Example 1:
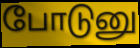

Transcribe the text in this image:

போடுனு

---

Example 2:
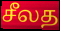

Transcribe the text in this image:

சீலத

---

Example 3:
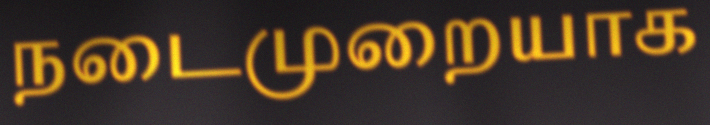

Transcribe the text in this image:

நடைமுறையாக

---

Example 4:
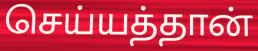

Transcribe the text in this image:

செய்யத்தான்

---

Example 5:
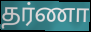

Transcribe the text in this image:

தர்ணா